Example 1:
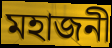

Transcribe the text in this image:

মহাজনী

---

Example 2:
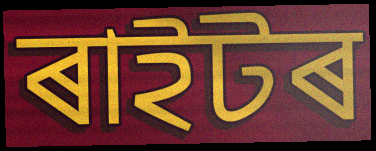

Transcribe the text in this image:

ৰাইটৰ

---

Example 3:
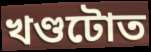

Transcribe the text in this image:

খণ্ডটোত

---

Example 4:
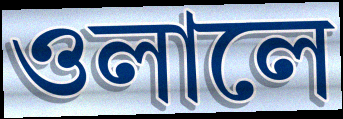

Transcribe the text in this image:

ওলালে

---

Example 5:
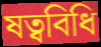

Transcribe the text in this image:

ষত্ববিধি